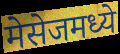
मेसेजमध्ये